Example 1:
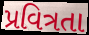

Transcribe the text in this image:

પ્રવિત્રતા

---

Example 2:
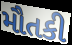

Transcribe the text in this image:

મૌતકી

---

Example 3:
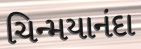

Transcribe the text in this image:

ચિન્મયાનંદા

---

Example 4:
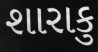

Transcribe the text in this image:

શારાકુ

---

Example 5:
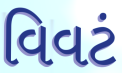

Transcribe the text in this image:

વિવટં